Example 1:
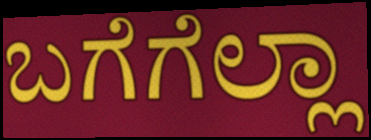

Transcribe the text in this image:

ಬಗೆಗೆಲ್ಲಾ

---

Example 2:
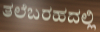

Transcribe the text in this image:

ತಲೆಬರಹದಲ್ಲಿ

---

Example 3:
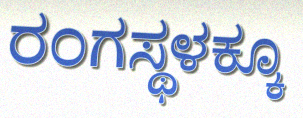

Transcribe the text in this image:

ರಂಗಸ್ಥಳಕ್ಕೂ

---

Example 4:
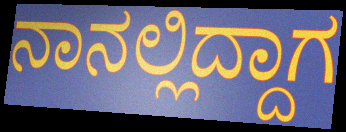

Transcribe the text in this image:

ನಾನಲ್ಲಿದ್ದಾಗ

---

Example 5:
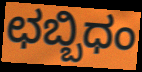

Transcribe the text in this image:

ಛಬ್ಬಿಧಂ